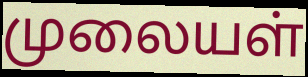
முலையள்